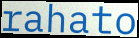
rahato